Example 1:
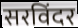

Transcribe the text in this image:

सरविंदर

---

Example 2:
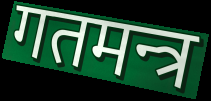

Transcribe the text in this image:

गतमन्त्र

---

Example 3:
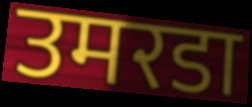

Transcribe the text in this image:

उमरडा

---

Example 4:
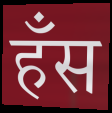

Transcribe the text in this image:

हँस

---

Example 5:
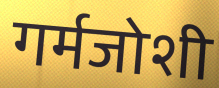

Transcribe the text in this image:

गर्मजोशी